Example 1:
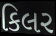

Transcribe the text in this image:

કિલર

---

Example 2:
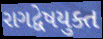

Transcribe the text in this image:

રાગદ્વેષયુક્ત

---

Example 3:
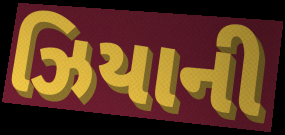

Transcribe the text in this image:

ઝિયાની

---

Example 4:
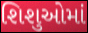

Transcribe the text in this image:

શિશુઓમાં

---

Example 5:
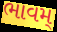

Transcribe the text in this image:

ભાવમ્